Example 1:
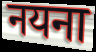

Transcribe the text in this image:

नयना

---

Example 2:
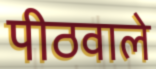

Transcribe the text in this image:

पीठवाले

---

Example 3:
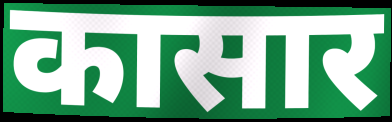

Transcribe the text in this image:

कासार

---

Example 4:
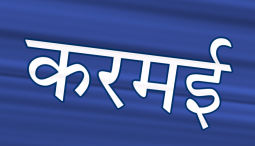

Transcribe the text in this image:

करमई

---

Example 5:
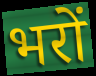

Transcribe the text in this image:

भरों